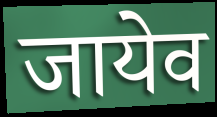
जायेव